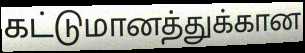
கட்டுமானத்துக்கான